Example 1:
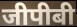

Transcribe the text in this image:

जीपीबी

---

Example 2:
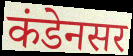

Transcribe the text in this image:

कंडेनसर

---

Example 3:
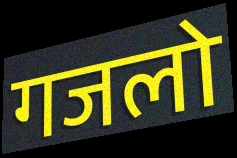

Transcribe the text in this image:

गजलो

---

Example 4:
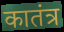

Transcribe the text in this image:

कातंत्र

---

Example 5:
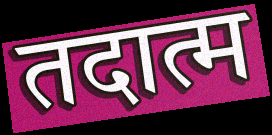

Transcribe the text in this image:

तदात्म